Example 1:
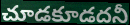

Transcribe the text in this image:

చూడకూడదనీ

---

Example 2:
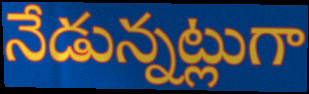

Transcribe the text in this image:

నేడున్నట్లుగా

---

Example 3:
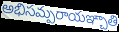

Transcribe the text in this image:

అభిసమ్పరాయఞ్చాతి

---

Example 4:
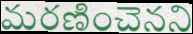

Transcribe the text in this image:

మరణించెనని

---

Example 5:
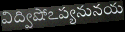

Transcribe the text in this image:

విద్విషోఽప్యనునయ